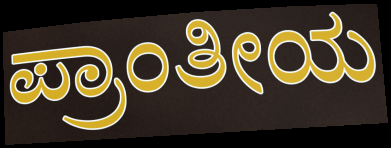
ಪ್ರಾಂತೀಯ